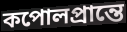
কপোলপ্রান্তে